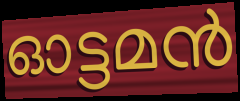
ഓട്ടമൻ